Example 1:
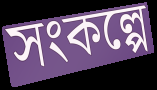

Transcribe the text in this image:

সংকল্পে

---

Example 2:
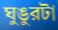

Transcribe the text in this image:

ঘুঙুরটা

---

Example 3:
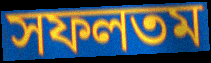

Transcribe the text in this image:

সফলতম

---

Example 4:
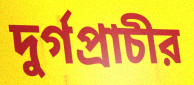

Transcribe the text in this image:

দুর্গপ্রাচীর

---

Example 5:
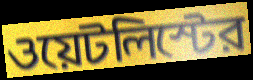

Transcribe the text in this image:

ওয়েটলিস্টের